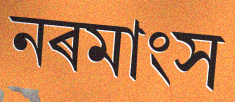
নৰমাংস